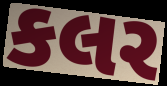
કલર